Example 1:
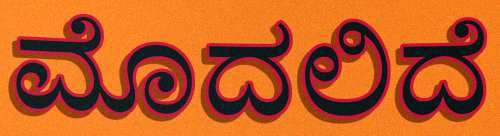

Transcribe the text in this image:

ಮೊದಲಿದೆ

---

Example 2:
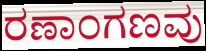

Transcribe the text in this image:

ರಣಾಂಗಣವು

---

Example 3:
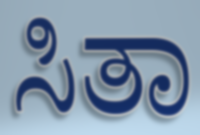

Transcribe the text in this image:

ಸಿತಾ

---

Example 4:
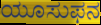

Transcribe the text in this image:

ಯೂಸುಫನ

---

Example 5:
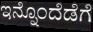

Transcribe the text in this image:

ಇನ್ನೊಂದೆಡೆಗೆ